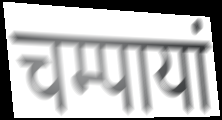
चम्पायां